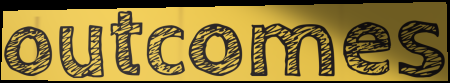
outcomes